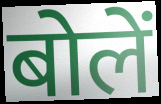
बोलें